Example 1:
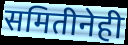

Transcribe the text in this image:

समितीनेही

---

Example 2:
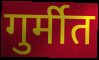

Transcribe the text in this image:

गुर्मीत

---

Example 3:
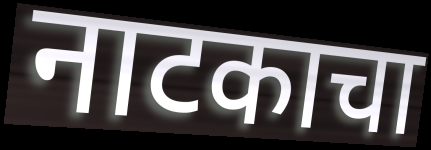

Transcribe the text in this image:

नाटकाचा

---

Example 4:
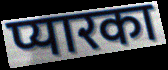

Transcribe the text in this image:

प्यारका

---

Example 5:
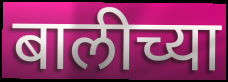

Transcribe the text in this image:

बालीच्या